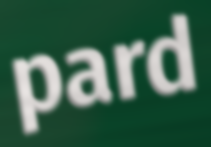
pard